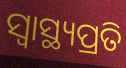
ସ୍ବାସ୍ଥ୍ୟପ୍ରତି